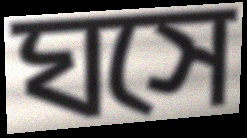
ঘসে